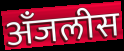
अँजलीस